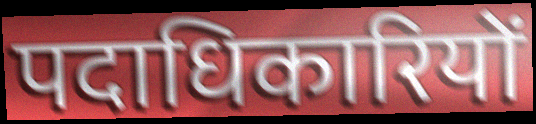
पदाधिकारियों